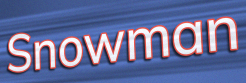
Snowman